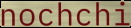
nochchi